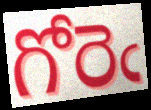
గోరెఁ